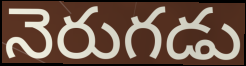
నెరుగడు